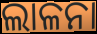
ଲାଳନା